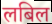
लबिल